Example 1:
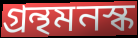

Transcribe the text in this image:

গ্রন্থমনস্ক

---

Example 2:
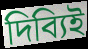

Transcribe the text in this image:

দিব্যিই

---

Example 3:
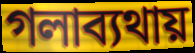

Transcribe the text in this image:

গলাব্যথায়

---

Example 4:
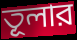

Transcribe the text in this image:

তূলার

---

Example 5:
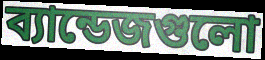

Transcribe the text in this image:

ব্যান্ডেজগুলো